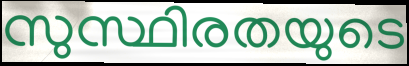
സുസ്ഥിരതയുടെ